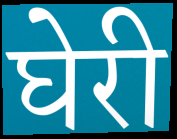
घेरी